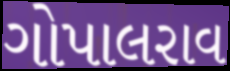
ગોપાલરાવ